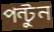
পন্টুন